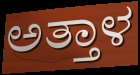
ಅತ್ತಾಳ